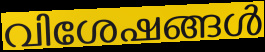
വിശേഷങ്ങൾ